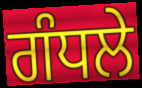
ਗੰਧਲੇ